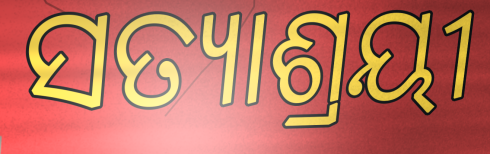
ସତ୍ୟାଶ୍ରୟୀ